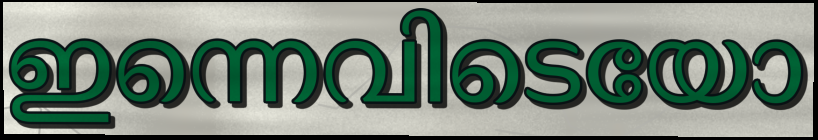
ഇന്നെവിടെയോ